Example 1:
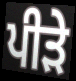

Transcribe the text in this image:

ਪੀੜੇ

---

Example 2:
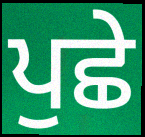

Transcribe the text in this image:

ਪੁਛੇ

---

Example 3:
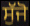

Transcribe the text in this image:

ਸੁੱਜੋ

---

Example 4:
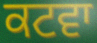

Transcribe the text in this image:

ਕਟਵਾ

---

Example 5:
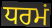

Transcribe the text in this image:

ਧਰਮਂ